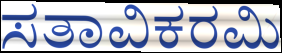
ಸತಾವಿಕರಮಿ